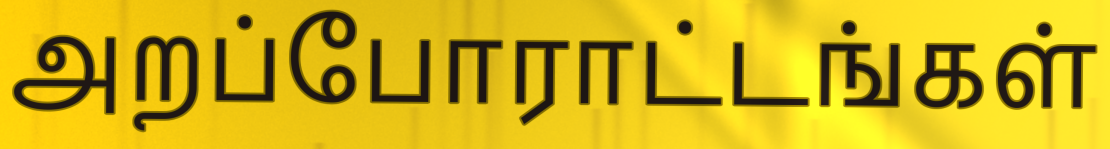
அறப்போராட்டங்கள்